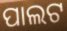
ପାଲଟ